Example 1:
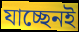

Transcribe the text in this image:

যাচ্ছেনই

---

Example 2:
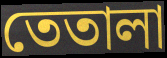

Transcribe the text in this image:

তেতালা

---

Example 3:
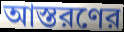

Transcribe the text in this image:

আস্তরণের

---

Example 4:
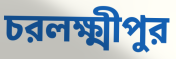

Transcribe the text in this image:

চরলক্ষ্মীপুর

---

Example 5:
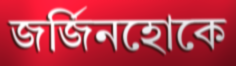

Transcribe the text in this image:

জর্জিনহোকে